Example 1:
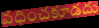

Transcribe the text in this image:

వధించకూడదు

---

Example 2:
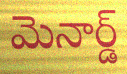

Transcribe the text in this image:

మెనార్డ్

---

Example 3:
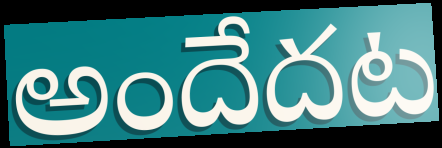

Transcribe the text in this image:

అందేదట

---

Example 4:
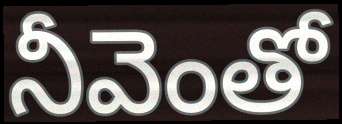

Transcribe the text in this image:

నీవెంతో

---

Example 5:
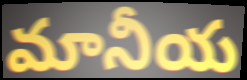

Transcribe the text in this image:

మానీయ